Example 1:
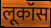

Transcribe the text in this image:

लूकॉस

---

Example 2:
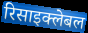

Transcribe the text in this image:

रिसाइक्लेबल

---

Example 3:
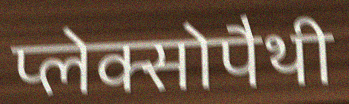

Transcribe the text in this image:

प्लेक्सोपैथी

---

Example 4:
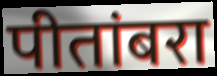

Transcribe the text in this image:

पीतांबरा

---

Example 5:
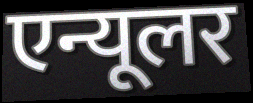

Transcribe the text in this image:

एन्यूलर